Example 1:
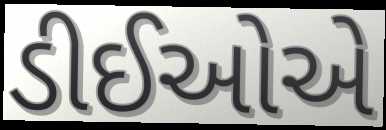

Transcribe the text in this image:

ડીઈઓએ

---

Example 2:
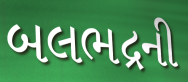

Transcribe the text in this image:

બલભદ્રની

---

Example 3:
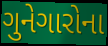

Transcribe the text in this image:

ગુનેગારોના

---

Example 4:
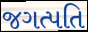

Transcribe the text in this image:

જગત્પતિ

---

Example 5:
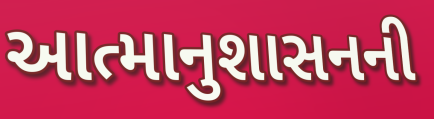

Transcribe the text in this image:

આત્માનુશાસનની